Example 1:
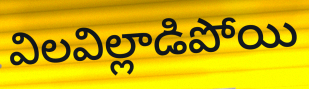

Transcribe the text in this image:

విలవిల్లాడిపోయి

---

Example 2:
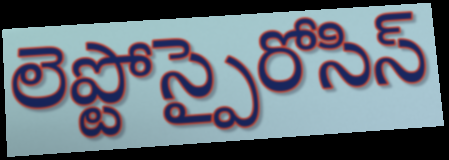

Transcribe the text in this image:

లెప్టోస్పైరోసిస్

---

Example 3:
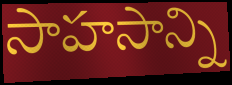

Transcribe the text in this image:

సాహసాన్ని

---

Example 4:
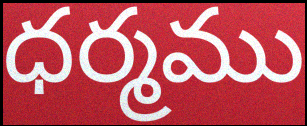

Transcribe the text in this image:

ధర్మము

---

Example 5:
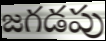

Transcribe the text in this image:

జగడపు